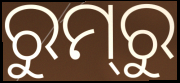
ରୁମ୍‌ରୁ